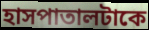
হাসপাতালটাকে